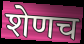
शेणच